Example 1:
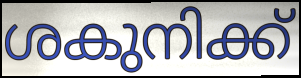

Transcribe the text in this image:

ശകുനിക്ക്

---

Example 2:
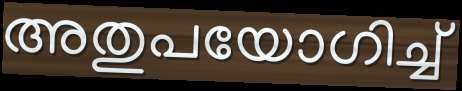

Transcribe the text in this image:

അതുപയോഗിച്ച്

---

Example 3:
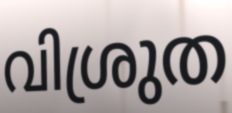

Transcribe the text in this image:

വിശ്രുത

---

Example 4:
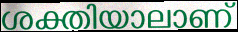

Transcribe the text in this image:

ശക്തിയാലാണ്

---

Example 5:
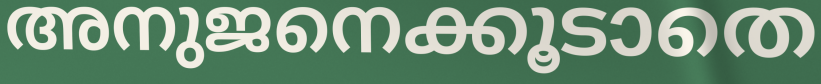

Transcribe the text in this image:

അനുജനെക്കൂടാതെ